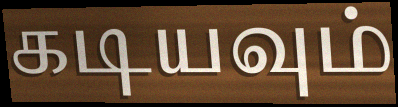
கடியவும்